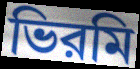
ভিরমি